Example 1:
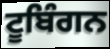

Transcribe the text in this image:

ਟੂਬਿੰਗਨ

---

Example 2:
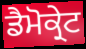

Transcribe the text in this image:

ਡੈਮੋਕ੍ਰੇਟ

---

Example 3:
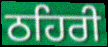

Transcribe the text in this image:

ਠਹਿਰੀ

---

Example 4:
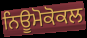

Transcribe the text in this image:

ਨਿਊਮੋਕੋਕਲ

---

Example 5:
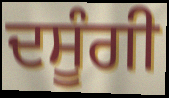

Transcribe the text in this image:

ਦਸੂੰਗੀ